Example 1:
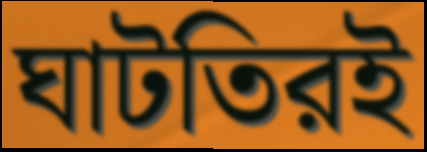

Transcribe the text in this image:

ঘাটতিরই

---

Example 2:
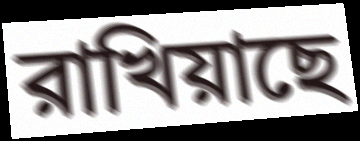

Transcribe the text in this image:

রাখিয়াছে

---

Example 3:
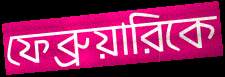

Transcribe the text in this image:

ফেব্রুয়ারিকে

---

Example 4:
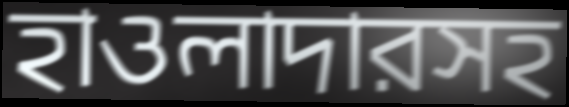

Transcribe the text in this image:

হাওলাদারসহ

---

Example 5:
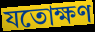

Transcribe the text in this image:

যতোক্ষণ